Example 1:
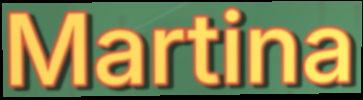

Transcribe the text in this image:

Martina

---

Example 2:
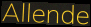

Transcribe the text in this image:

Allende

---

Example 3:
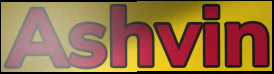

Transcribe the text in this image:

Ashvin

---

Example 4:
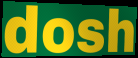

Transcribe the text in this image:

dosh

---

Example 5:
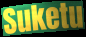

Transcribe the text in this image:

Suketu